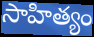
సాహిత్యం